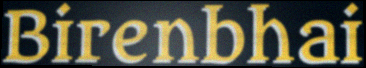
Birenbhai